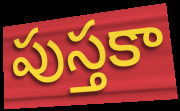
పుస్తకా